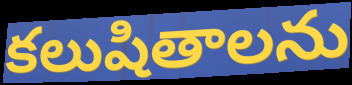
కలుషితాలను